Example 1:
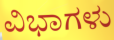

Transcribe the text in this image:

ವಿಭಾಗಳು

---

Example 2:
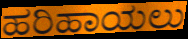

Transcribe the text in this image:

ಹರಿಹಾಯಲು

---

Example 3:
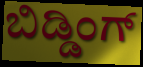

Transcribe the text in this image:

ಬಿಡ್ಡಿಂಗ್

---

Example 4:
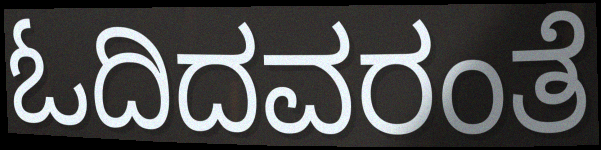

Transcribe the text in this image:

ಓದಿದವರಂತೆ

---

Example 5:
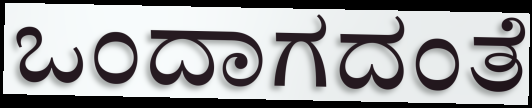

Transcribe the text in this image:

ಒಂದಾಗದಂತೆ